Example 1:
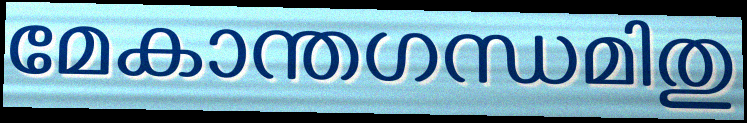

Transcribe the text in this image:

മേകാന്തഗന്ധമിതു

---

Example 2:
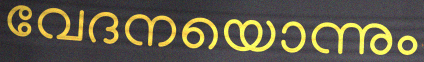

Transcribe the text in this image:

വേദനയൊന്നും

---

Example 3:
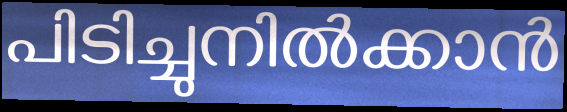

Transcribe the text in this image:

പിടിച്ചുനിൽക്കാൻ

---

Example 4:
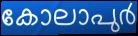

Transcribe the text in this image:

കോലാപുർ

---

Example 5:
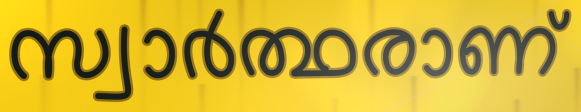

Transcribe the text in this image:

സ്വാർത്ഥരാണ്